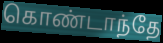
கொண்டாந்தே